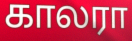
காலரா